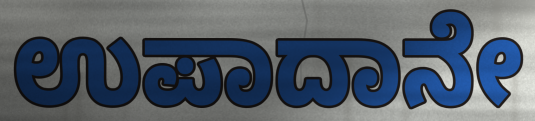
ಉಪಾದಾನೇ